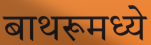
बाथरूमध्ये